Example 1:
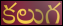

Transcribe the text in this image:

కలుగ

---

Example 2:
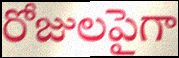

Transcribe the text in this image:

రోజులపైగా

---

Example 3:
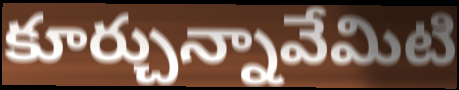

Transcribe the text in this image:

కూర్చున్నావేమిటి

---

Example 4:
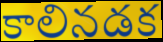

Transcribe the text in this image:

కాలినడక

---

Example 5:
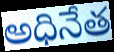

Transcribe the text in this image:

అధినేత